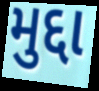
મુદ્દા